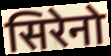
सिरेनो